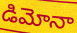
డిమోనా